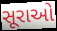
સૂરાઓ